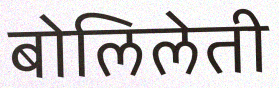
बोलिलेती